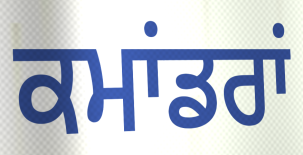
ਕਮਾਂਡਰਾਂ